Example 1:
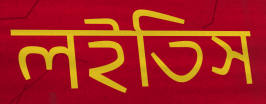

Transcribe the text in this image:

লইতিস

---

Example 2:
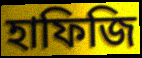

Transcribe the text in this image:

হাফিজি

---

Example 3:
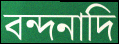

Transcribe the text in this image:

বন্দনাদি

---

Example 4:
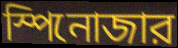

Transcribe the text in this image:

স্পিনোজার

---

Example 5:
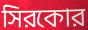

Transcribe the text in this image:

সিরকোর